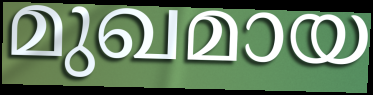
മുഖമായ